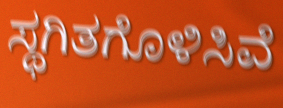
ಸ್ಥಗಿತಗೊಳಿಸಿವೆ